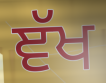
ਞੱਖ